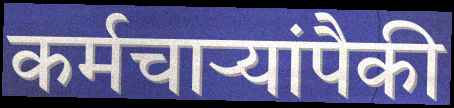
कर्मचार्‍यांपैकी